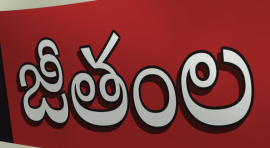
జీతంల